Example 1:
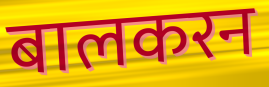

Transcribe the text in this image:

बालकरन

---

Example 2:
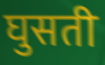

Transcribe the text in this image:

घुसती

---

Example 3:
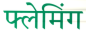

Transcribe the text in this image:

फ्लेमिंग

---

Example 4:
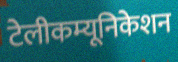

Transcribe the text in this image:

टेलीकम्‍यूनिकेशन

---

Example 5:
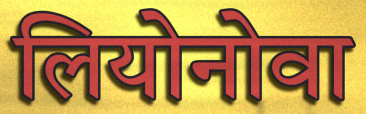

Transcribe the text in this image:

लियोनोवा